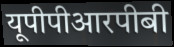
यूपीपीआरपीबी